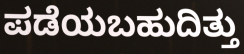
ಪಡೆಯಬಹುದಿತ್ತು